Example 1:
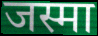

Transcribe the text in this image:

जस्मा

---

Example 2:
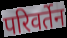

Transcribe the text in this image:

परिवर्तेन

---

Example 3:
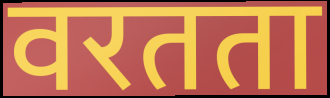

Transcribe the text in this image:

वरतता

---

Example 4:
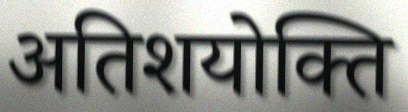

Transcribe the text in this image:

अतिशयोक्ति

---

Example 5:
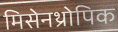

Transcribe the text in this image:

मिसेनथ्रोपिक